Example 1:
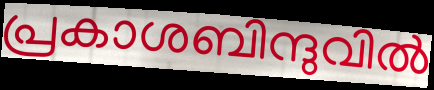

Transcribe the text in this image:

പ്രകാശബിന്ദുവിൽ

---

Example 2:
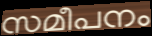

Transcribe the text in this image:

സമീപനം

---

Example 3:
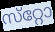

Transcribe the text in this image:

സ്‌റ്റോ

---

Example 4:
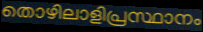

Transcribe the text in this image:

തൊഴിലാളിപ്രസ്ഥാനം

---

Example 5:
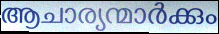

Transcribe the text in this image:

ആചാര്യന്മാർക്കും